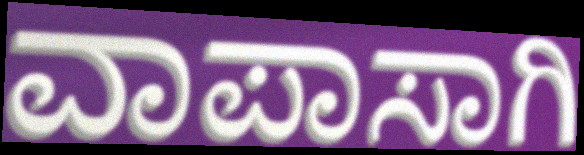
ವಾಪಾಸಾಗಿ